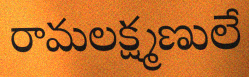
రామలక్ష్మణులే